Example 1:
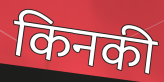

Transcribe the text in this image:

किनकी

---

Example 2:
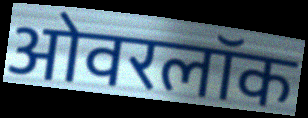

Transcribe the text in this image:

ओवरलॉक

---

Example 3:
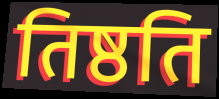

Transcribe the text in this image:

तिष्ठति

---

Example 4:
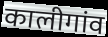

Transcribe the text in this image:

कालीगांव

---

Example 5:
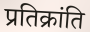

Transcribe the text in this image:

प्रतिक्रांति